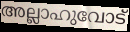
അല്ലാഹുവോട്